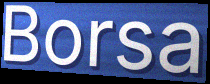
Borsa